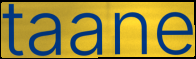
taane